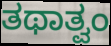
ತಥಾತ್ವಂ